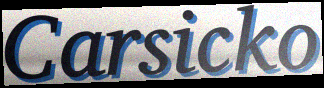
Carsicko